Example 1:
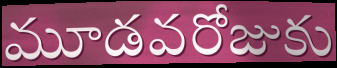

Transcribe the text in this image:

మూడవరోజుకు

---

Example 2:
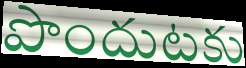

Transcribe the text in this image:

పొందుటకు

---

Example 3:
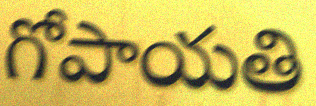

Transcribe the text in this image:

గోపాయతి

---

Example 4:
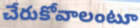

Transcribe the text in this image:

చేరుకోవాలంటూ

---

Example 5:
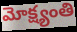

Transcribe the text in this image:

మోక్ష్యంతి